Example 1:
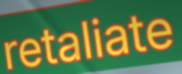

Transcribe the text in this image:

retaliate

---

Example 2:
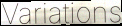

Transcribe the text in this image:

Variations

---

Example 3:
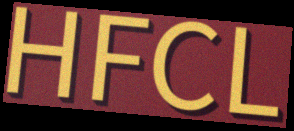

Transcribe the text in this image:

HFCL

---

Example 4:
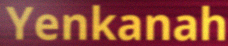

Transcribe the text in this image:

Yenkanah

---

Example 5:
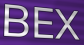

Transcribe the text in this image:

BEX